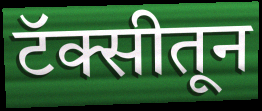
टॅक्‍सीतून